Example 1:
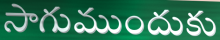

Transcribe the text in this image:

సాగుముందుకు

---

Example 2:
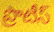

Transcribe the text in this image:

ప్రొటీస్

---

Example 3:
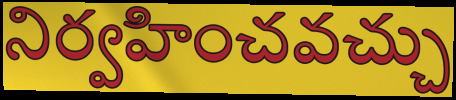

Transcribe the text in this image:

నిర్వహించవచ్చు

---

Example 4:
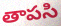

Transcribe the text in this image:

తాపసి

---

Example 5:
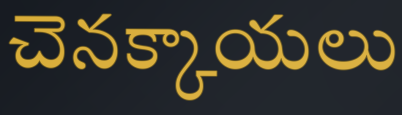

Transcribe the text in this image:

చెనక్కాయలు